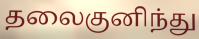
தலைகுனிந்து